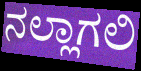
ನಲ್ಲಾಗಲಿ